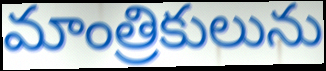
మాంత్రికులును